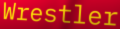
Wrestler